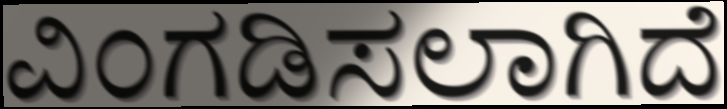
ವಿಂಗಡಿಸಲಾಗಿದೆ